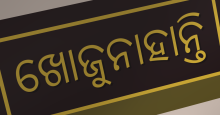
ଖୋଜୁନାହାନ୍ତି